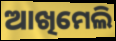
ଆଖିମେଲି